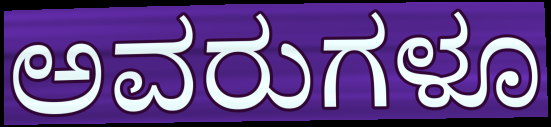
ಅವರುಗಳೂ